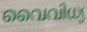
വൈവിധ്യ